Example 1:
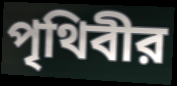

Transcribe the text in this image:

পৃথিবীর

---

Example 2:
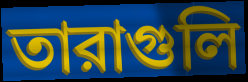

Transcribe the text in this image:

তারাগুলি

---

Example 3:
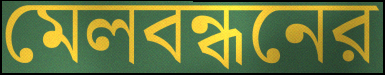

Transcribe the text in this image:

মেলবন্ধনের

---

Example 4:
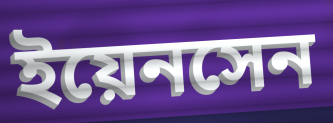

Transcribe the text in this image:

ইয়েনসেন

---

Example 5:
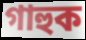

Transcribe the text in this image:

গাহুক